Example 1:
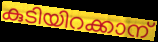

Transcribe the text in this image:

കുടിയിറക്കാന്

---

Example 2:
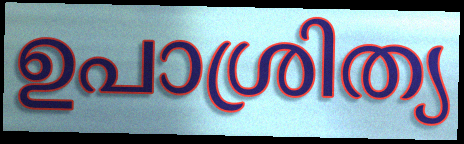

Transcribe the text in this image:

ഉപാശ്രിത്യ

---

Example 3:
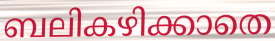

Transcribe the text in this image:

ബലികഴിക്കാതെ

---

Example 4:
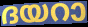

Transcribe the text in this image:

ദയറാ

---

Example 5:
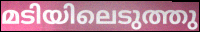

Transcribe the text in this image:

മടിയിലെടുത്തു